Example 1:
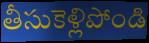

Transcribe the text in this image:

తీసుకెళ్లిపోండి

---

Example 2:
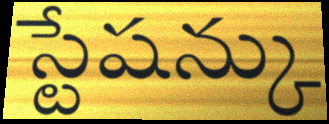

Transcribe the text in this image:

స్టేషన్కు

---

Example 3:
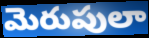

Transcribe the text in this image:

మెరుపులా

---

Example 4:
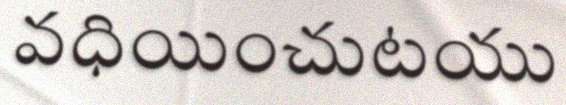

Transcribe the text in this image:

వధియించుటయు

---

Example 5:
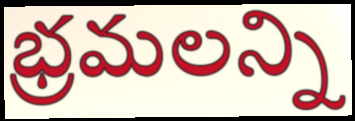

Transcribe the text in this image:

భ్రమలన్ని